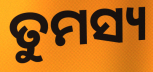
ତୁମସ୍ୟ